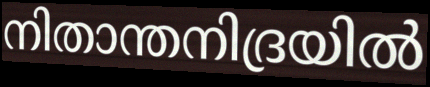
നിതാന്തനിദ്രയിൽ